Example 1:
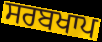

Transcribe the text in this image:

ਸਰਬਖਾਪ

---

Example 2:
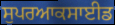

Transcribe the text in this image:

ਸੁਪਰਆਕਸਾਈਡ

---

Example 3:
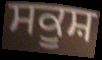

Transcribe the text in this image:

ਸਕੂਸ਼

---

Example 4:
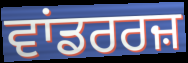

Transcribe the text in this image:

ਵਾਂਡਰਰਜ਼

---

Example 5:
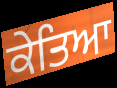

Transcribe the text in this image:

ਕੇਤਿਆ